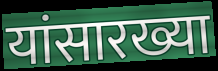
यांसारख्या